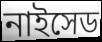
নাইসেড